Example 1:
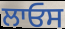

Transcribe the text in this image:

ਲਾਓਸ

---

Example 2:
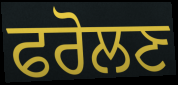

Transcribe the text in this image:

ਫਰੋਲਣ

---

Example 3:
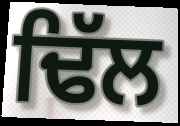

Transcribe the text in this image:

ਢਿੱਲ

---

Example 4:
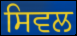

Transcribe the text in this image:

ਸਿਵਲ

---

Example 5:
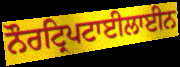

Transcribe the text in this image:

ਨੌਰਟ੍ਰਿਪਟਾਈਲਾਈਨ